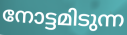
നോട്ടമിടുന്ന